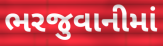
ભરજુવાનીમાં